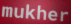
mukher